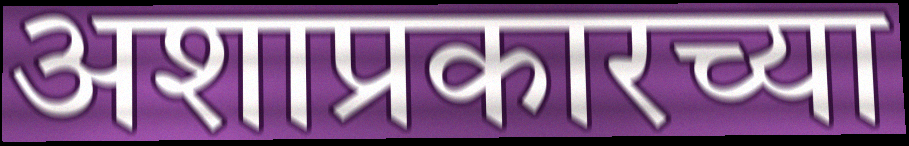
अशाप्रकारच्या